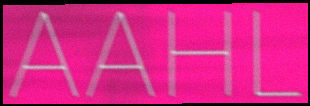
AAHL